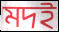
মদই